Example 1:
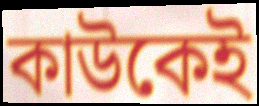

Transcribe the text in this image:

কাউকেই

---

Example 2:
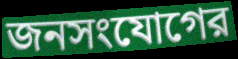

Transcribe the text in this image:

জনসংযোগের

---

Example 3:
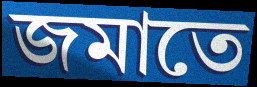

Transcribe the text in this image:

জমাতে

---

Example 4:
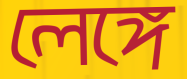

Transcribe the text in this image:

লেঙ্গে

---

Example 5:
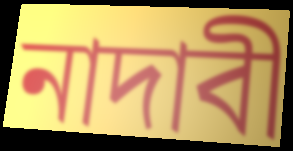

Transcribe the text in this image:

নাদাবী